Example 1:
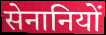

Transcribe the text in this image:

सेनानियों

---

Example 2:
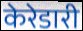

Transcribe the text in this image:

केरेडारी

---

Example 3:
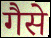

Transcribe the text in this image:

गैसे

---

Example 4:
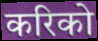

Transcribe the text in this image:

करिको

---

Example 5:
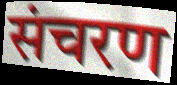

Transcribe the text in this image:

संचरण